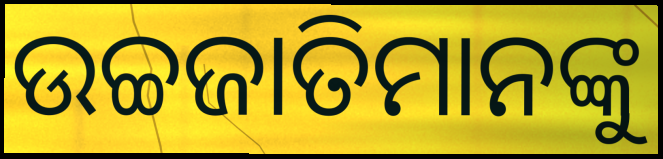
ଉଚ୍ଚଜାତିମାନଙ୍କୁ